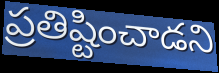
ప్రతిష్టించాడని